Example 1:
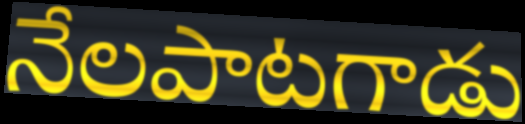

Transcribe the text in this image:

నేలపాటగాడు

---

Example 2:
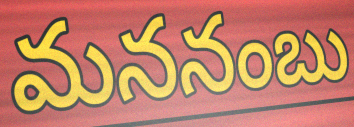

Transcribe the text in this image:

మననంబు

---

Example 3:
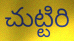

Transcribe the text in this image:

చుట్టిరి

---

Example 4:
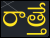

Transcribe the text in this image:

రాత్తే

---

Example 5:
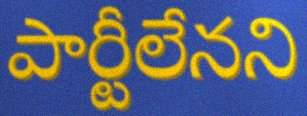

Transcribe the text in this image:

పార్టీలేనని